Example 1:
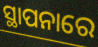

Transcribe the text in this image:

ସ୍ଥାପନାରେ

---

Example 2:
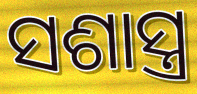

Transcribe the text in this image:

ସଶାସ୍ତ୍ର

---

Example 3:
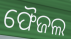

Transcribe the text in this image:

ଫୈଜଲ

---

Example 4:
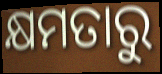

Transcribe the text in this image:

କ୍ଷମତାରୁ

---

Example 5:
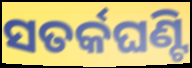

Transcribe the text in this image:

ସତର୍କଘଣ୍ଟି